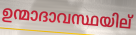
ഉന്മാദാവസ്ഥയില്